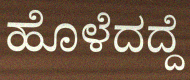
ಹೊಳೆದದ್ದೆ